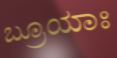
ಬ್ರೂಯಾಃ